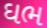
ઘભ